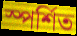
স্পর্শিত